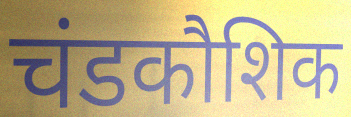
चंडकौशिक